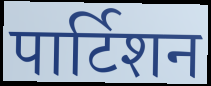
पार्टिशन